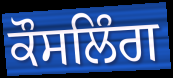
ਕੌਸਲਿੰਗ